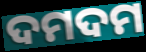
ଦମଦମ